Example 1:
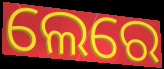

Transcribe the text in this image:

ଲେରେ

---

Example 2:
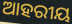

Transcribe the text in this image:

ଆହରୀୟ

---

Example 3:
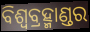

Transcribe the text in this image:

ବିଶ୍ୱବ୍ରହ୍ମାଣ୍ଡର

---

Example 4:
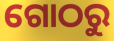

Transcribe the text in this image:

ଗୋଠରୁ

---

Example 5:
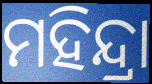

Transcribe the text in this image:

ମହିନ୍ଦ୍ରା